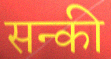
सन्की